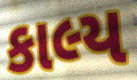
કાલ્ય